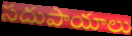
సదుపాయాలు